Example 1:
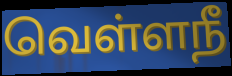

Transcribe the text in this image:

வெள்ளநீ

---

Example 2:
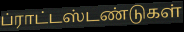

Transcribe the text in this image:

ப்ராட்டஸ்டண்டுகள்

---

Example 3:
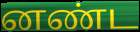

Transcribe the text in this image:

னண்ட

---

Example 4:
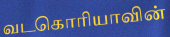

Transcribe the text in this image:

வடகொரியாவின்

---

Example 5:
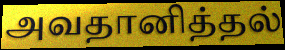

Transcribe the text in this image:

அவதானித்தல்